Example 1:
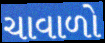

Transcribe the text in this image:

ચાવાળો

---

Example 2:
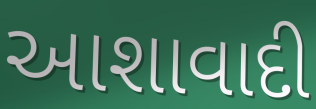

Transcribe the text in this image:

આશાવાદી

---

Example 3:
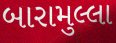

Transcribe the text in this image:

બારામુલ્લા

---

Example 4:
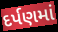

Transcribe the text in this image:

દર્પણમાં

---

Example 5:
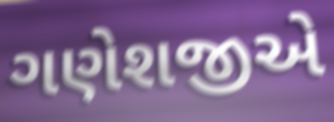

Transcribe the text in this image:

ગણેશજીએ